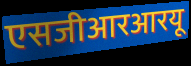
एसजीआरआरयू